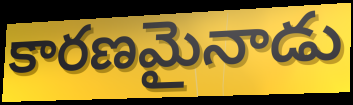
కారణమైనాడు